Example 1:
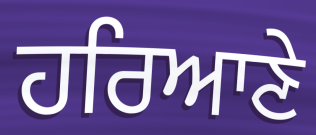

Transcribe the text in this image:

ਹਰਿਆਣੇ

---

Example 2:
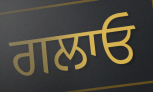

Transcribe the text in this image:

ਗਲਾਓ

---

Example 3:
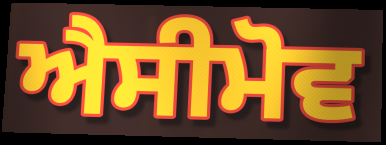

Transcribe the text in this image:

ਐਸੀਮੋਵ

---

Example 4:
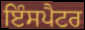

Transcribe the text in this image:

ਇੰਸਪੈਟਰ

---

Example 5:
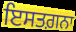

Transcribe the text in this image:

ਇਸਤਗ਼ਨਾ